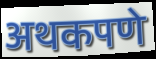
अथकपणे